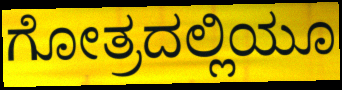
ಗೋತ್ರದಲ್ಲಿಯೂ